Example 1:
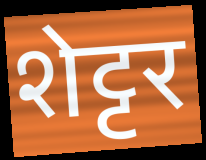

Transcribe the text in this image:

शेट्टर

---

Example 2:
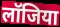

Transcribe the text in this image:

लॉजिया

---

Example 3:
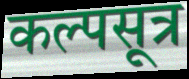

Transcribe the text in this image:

कल्पसूत्र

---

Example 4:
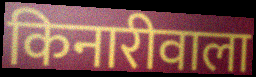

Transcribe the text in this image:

किनारीवाला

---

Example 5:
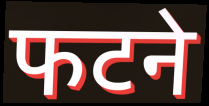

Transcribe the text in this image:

फटने